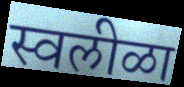
स्वलीळा